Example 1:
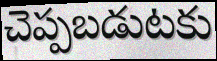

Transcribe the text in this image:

చెప్పబడుటకు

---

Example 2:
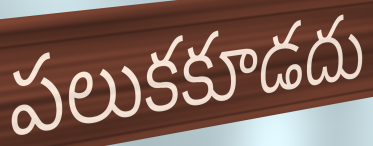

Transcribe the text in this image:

పలుకకూడదు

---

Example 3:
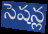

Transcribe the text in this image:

సెషన్ల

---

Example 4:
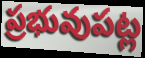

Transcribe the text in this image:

ప్రభువుపట్ల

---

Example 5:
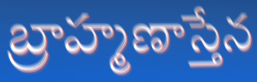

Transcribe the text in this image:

బ్రాహ్మణాస్తేన